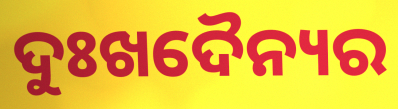
ଦୁଃଖଦୈନ୍ୟର